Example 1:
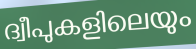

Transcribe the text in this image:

ദ്വീപുകളിലെയും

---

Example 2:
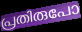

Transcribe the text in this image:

പ്രതിരുപോ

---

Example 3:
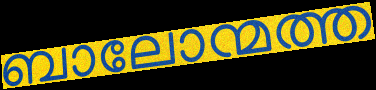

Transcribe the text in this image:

ബാലോന്മത്ത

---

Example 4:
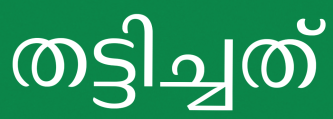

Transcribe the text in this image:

തട്ടിച്ചത്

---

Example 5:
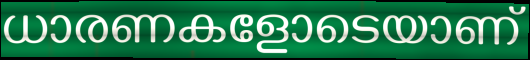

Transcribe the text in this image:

ധാരണകളോടെയാണ്